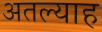
अतल्याह